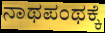
ನಾಥಪಂಥಕ್ಕೆ